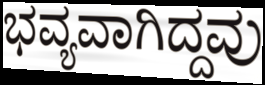
ಭವ್ಯವಾಗಿದ್ದವು